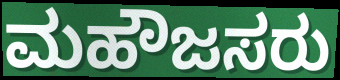
ಮಹೌಜಸರು